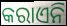
କରାଏନି